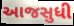
આજસુધી